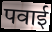
पवाई